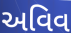
અવિવ